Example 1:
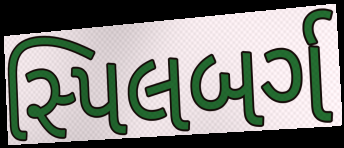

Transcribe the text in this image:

સ્પિલબર્ગ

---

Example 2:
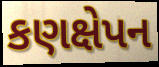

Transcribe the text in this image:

કણક્ષેપન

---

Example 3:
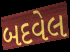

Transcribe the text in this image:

બદવેલ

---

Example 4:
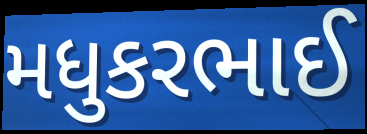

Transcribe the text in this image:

મધુકરભાઈ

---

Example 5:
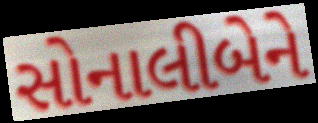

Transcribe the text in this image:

સોનાલીબેને